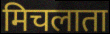
मिचलाता